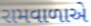
રામવાળાએ